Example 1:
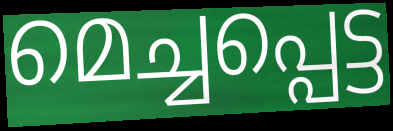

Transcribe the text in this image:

മെച്ചപ്പെട്ട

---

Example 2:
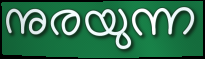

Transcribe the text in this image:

നുരയുന്ന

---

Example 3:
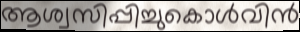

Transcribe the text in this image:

ആശ്വസിപ്പിച്ചുകൊൾവിൻ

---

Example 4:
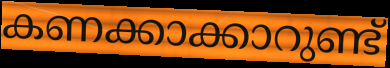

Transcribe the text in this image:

കണക്കാക്കാറുണ്ട്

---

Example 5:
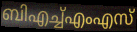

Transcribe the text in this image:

ബിഎച്ച്എംഎസ്